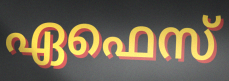
ഏഫെസ്